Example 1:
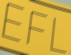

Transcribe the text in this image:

EFL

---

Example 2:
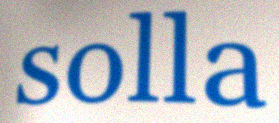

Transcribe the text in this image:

solla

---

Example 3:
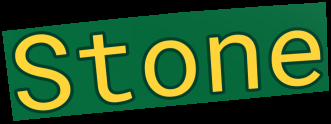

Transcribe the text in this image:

Stone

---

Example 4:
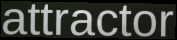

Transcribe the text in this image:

attractor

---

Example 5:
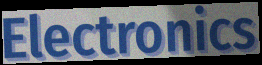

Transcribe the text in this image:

Electronics